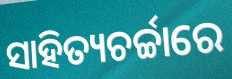
ସାହିତ୍ୟଚର୍ଚ୍ଚାରେ